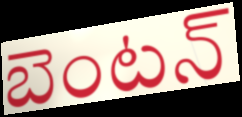
బెంటన్